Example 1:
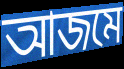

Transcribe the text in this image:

আজমে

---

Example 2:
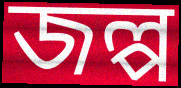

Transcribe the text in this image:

জল্প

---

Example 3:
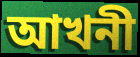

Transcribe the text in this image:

আখনী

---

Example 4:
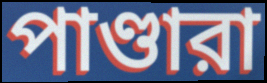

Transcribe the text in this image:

পাণ্ডারা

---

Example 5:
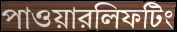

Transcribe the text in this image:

পাওয়ারলিফটিং